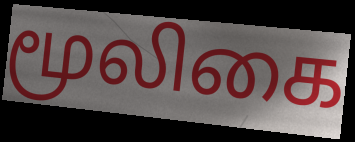
மூலிகை